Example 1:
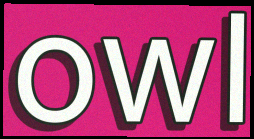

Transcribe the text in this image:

owl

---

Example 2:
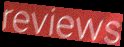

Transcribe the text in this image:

reviews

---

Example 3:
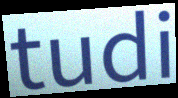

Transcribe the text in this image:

tudi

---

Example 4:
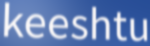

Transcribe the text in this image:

keeshtu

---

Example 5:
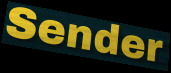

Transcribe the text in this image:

Sender